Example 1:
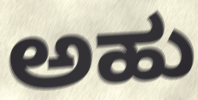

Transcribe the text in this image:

ಅಹು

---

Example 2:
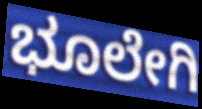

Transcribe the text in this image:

ಭೂಲೇಗಿ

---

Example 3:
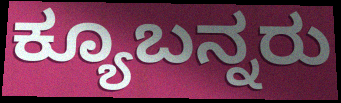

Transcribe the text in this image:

ಕ್ಯೂಬನ್ನರು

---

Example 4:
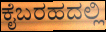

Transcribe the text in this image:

ಕೈಬರಹದಲ್ಲಿ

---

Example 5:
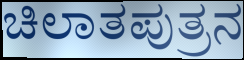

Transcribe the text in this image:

ಚಿಲಾತಪುತ್ರನ